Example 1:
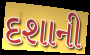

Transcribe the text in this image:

દશાની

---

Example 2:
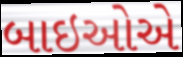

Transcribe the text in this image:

બાઇઓએ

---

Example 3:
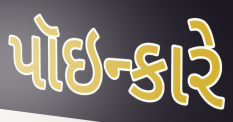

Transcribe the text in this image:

પૉઇન્કારે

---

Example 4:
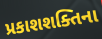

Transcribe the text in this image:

પ્રકાશશક્તિના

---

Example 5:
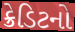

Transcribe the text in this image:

ક્રેડિટનો